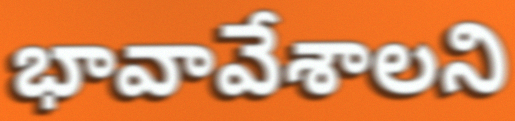
భావావేశాలని